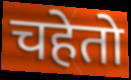
चहेतो